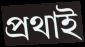
প্রথাই